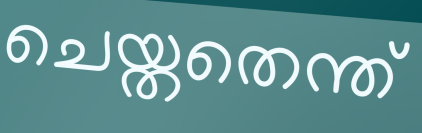
ചെയ്തതെന്ത്